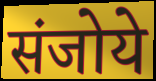
संजोये